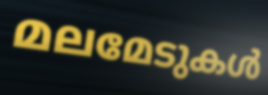
മലമേടുകൾ